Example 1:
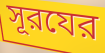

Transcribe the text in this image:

সূরযের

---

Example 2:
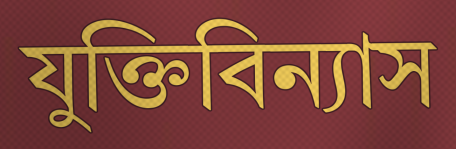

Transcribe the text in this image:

যুক্তিবিন্যাস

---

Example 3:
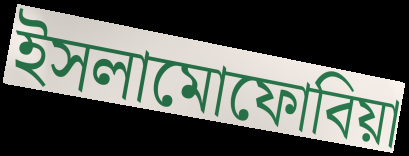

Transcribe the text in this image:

ইসলামোফোবিয়া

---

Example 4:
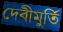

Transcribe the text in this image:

দেবীমুর্তি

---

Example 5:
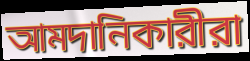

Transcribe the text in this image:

আমদানিকারীরা